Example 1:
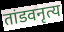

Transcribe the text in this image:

तांडवनृत्य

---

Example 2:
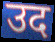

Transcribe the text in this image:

उद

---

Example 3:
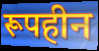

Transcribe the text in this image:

रूपहीन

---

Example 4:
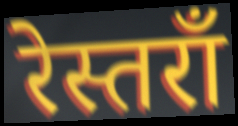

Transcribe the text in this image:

रेस्तराँ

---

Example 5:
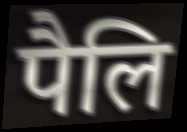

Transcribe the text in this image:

पैलि